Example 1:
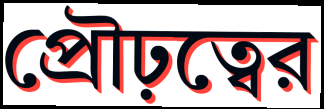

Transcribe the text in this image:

প্রৌঢ়ত্বের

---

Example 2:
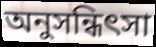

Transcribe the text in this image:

অনুসন্ধিৎসা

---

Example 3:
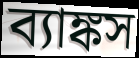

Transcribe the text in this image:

ব্যাঙ্কস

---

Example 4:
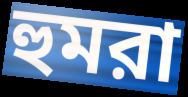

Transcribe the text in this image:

হুমরা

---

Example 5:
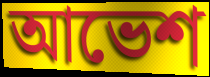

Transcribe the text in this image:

আভেশ